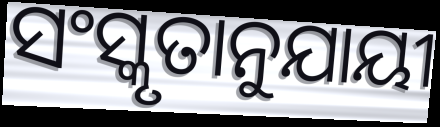
ସଂସ୍କୃତାନୁଯାୟୀ